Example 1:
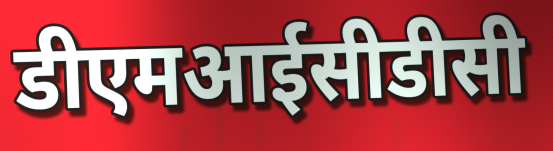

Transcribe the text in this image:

डीएमआईसीडीसी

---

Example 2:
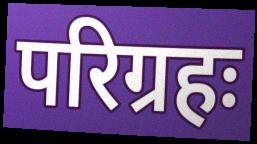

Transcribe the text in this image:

परिग्रहः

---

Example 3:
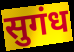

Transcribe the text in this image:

सुगंध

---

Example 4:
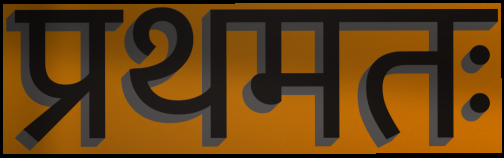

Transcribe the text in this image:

प्रथमतः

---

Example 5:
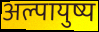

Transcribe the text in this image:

अल्पायुष्य